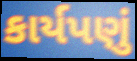
કાર્યપણું